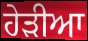
ਹੇੜੀਆ